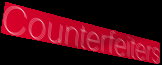
Counterfeiters